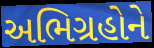
અભિગ્રહોને